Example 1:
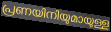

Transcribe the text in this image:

പ്രണയിനിയുമായുള്ള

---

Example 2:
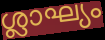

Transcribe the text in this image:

ശ്ലാഘ്യം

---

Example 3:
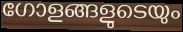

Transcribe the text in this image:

ഗോളങ്ങളുടെയും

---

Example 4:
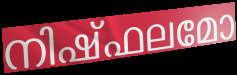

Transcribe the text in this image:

നിഷ്ഫലമോ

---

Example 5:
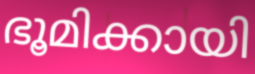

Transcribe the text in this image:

ഭൂമിക്കായി